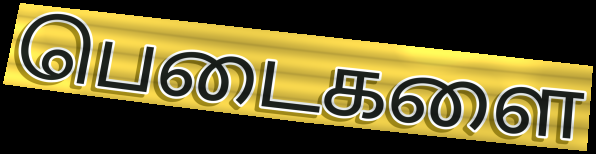
பெடைகளை